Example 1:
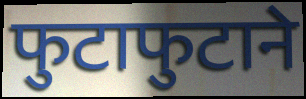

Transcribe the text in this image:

फुटाफुटाने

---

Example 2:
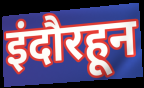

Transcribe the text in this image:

इंदौरहून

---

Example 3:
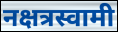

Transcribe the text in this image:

नक्षत्रस्वामी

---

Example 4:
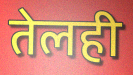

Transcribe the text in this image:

तेलही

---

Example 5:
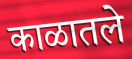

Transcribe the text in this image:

काळातले